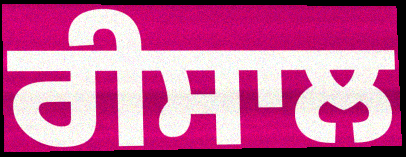
ਰੀਸਾਲ